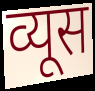
व्यूस